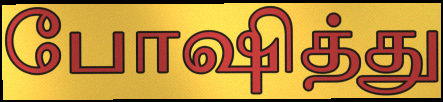
போஷித்து